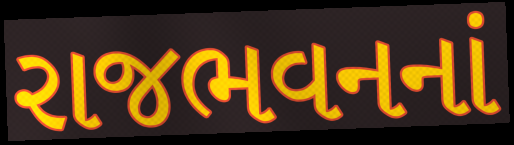
રાજભવનનાં